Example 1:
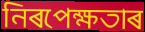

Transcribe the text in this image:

নিৰপেক্ষতাৰ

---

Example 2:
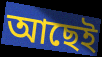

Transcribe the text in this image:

আছেই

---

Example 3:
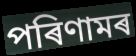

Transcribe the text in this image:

পৰিণামৰ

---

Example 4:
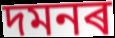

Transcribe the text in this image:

দমনৰ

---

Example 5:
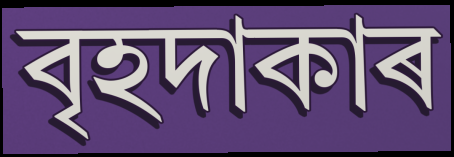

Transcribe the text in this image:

বৃহদাকাৰ